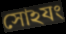
সোঽযং